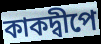
কাকদ্বীপে